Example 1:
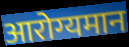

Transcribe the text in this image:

आरोग्यमान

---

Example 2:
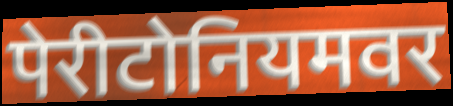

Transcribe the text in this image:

पेरीटोनियमवर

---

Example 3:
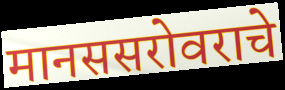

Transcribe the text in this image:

मानससरोवराचे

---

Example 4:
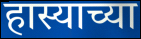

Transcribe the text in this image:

हास्याच्या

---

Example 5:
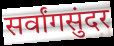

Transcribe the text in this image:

सर्वांगसुंदर